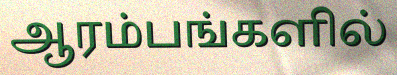
ஆரம்பங்களில்